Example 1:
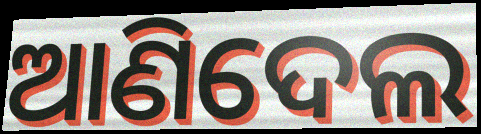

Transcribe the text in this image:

ଆଣିଦେଲ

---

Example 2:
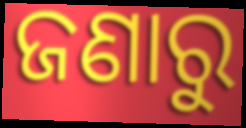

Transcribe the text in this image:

ଜଣାରୁ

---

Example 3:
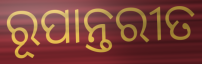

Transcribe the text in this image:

ରୂପାନ୍ତରୀତ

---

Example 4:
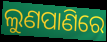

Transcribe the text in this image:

ଲୁଣପାଣିରେ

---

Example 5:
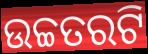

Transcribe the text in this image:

ଉଚ୍ଚତରଟି